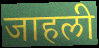
जाहली